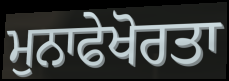
ਮੁਨਾਫੇਖੋਰਤਾ